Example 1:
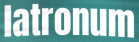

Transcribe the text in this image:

latronum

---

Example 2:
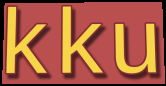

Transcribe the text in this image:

kku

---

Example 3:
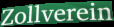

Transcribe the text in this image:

Zollverein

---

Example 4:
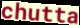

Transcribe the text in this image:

chutta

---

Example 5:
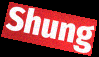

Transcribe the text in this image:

Shung